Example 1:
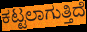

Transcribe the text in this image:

ಕಟ್ಟಲಾಗುತ್ತಿದೆ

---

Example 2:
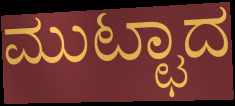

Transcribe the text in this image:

ಮುಟ್ಟಾದ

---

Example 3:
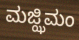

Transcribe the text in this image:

ಮಜ್ಝಿಮಂ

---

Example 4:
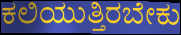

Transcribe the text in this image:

ಕಲಿಯುತ್ತಿರಬೇಕು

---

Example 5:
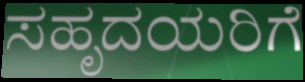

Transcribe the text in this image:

ಸಹೃದಯರಿಗೆ